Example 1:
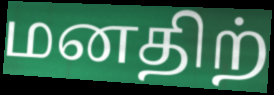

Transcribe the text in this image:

மனதிற்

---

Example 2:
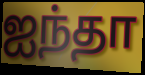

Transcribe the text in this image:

ஐந்தா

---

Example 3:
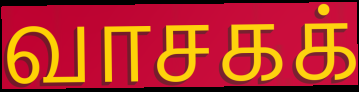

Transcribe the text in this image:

வாசகக்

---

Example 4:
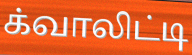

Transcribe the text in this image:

க்வாலிட்டி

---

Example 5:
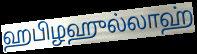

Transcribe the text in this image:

ஹபிழஹுல்லாஹ்